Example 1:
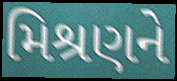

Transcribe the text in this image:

મિશ્રણને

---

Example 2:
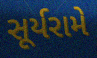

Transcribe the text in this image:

સૂર્યરામે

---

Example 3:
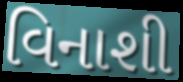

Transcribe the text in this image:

વિનાશી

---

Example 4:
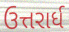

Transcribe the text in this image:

ઉત્તરાર્ધ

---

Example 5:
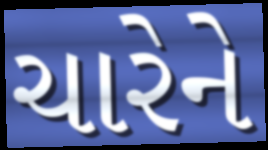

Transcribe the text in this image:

ચારેને